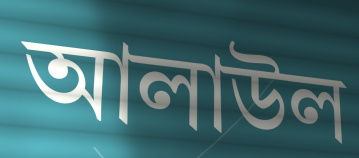
আলাউল